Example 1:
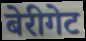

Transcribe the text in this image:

बेरीगेट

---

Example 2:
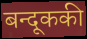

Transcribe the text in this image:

बन्दूककी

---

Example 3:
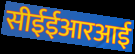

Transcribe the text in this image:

सीईईआरआई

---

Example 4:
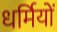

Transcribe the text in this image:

धर्मियों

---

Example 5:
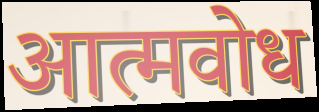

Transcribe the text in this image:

आत्मवोध